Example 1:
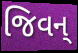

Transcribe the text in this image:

જિવન્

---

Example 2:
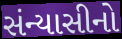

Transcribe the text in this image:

સંન્યાસીનો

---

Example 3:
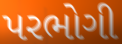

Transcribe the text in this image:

પરભોગી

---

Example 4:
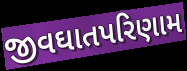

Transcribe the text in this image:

જીવઘાતપરિણામ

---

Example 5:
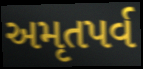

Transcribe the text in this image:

અમૃતપર્વ